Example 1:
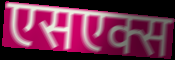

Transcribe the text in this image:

एसएक्स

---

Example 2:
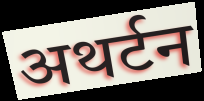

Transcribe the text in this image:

अथर्टन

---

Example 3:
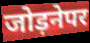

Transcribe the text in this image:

जोड़नेपर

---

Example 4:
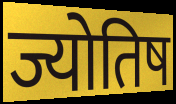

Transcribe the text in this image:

ज्योतिष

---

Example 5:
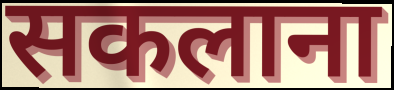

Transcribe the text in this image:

सकलाना